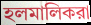
হলমালিকরা